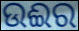
ଉଈର